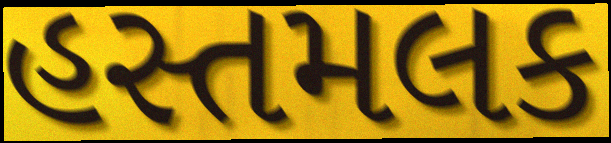
હસ્તમલક